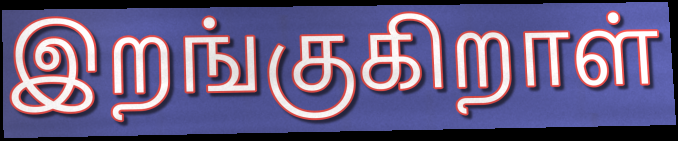
இறங்குகிறாள்